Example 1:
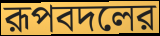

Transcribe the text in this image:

রূপবদলের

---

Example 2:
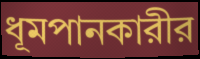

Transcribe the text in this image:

ধূমপানকারীর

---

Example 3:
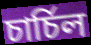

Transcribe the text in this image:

চার্চিল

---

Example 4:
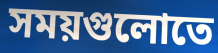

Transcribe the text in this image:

সময়গুলোতে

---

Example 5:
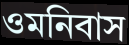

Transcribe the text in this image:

ওমনিবাস